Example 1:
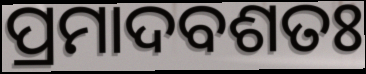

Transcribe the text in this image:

ପ୍ରମାଦବଶତଃ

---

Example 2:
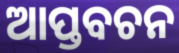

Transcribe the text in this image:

ଆପ୍ତବଚନ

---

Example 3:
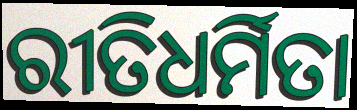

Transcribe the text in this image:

ରୀତିଧର୍ମିତା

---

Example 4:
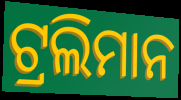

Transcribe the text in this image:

ଟ୍ରଲିମାନ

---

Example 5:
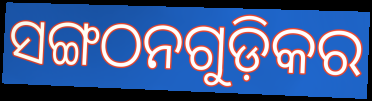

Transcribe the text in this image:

ସଙ୍ଗଠନଗୁଡ଼ିକର